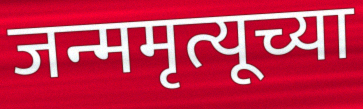
जन्ममृत्यूच्या